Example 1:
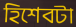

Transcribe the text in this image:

হিশেবটা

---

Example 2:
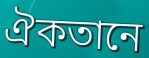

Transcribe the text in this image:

ঐকতানে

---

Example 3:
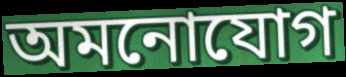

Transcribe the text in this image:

অমনোযোগ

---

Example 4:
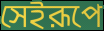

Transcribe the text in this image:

সেইরূপে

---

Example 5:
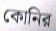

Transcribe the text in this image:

কোনির